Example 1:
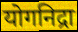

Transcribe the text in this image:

योगनिद्रा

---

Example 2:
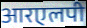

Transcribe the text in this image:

आरएलपी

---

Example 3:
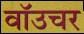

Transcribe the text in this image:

वॉउचर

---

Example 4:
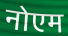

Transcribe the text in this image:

नोएम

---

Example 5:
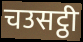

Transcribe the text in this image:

चउसट्ठी